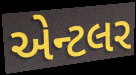
એન્ટલર